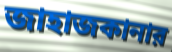
জাহাজকানার